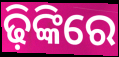
ଢ଼ିଙ୍କିରେ